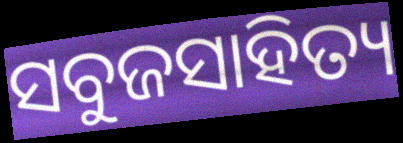
ସବୁଜସାହିତ୍ୟ